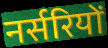
नर्सरियों